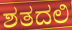
ಶತದಲಿ